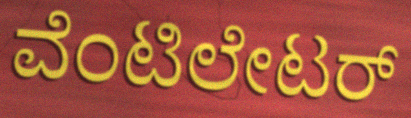
ವೆಂಟಿಲೇಟರ್